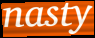
nasty